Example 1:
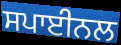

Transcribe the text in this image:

ਸਪਾਈਨਲ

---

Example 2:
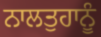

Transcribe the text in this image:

ਨਾਲਤੁਹਾਨੂੰ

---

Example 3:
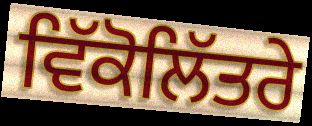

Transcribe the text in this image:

ਵਿੱਕੋਲਿੱਤਰੇ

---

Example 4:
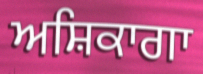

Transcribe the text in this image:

ਅਸ਼ਿਕਾਗਾ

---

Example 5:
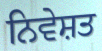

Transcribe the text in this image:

ਨਿਵੇਸ਼ਤ